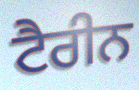
ਟੈਰੀਨ